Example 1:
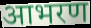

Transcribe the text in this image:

आभरण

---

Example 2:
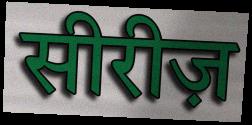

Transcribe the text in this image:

सीरीज़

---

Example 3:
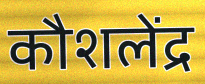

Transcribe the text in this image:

कौशलेंद्र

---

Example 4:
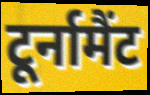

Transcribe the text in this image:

टूर्नामैंट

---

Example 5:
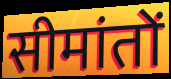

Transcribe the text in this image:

सीमांतों